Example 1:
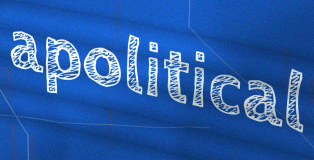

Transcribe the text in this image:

apolitical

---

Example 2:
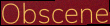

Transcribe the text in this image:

Obscene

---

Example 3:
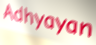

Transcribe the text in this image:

Adhyayan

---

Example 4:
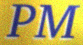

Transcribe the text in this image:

PM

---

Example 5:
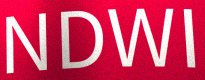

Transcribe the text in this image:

NDWI